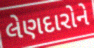
લેણદારોને